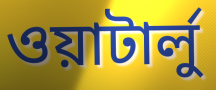
ওয়াটার্লু